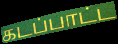
கடப்பாட்ட